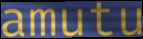
amutu